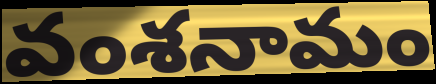
వంశనామం